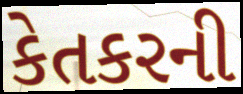
કેતકરની